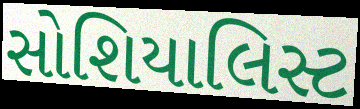
સોશિયાલિસ્ટ